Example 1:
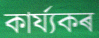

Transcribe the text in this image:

কাৰ্য্যকৰ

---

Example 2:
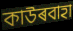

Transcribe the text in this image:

কাউৰবাহা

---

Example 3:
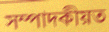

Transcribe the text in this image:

সম্পাদকীয়ত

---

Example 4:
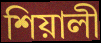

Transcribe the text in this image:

শিয়ালী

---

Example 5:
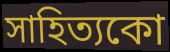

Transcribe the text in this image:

সাহিত্যকো